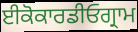
ਈਕੋਕਾਰਡੀਓਗ੍ਰਾਮ